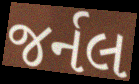
જર્નલ